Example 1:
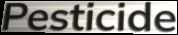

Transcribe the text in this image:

Pesticide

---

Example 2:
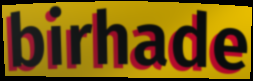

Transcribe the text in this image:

birhade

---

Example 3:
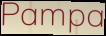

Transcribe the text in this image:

Pampa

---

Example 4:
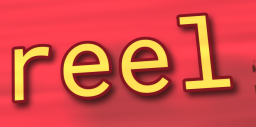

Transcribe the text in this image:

reel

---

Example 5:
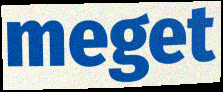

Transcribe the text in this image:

meget